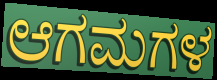
ಆಗಮಗಳ